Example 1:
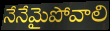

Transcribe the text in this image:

నేనేమైపోవాలి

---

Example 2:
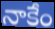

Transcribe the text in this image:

నాకేం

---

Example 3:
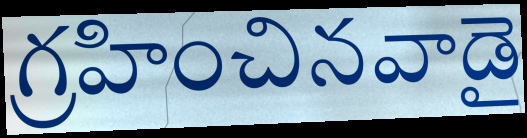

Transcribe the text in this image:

గ్రహించినవాడై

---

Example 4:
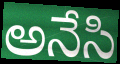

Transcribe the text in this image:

అనేసి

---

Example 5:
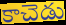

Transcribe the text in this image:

కాచెడు